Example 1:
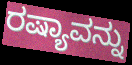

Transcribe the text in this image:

ರಷ್ಯಾವನ್ನು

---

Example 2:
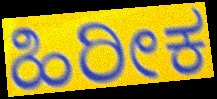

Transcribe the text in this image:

ಹಿರೀಕ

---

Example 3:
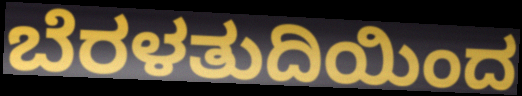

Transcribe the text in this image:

ಬೆರಳತುದಿಯಿಂದ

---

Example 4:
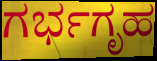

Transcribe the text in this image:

ಗರ್ಭಗೃಹ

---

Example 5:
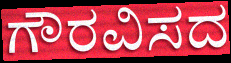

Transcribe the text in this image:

ಗೌರವಿಸದ